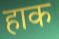
हाक